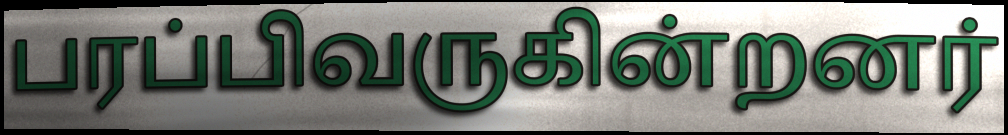
பரப்பிவருகின்றனர்